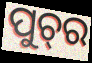
ପୁଚ୍‍ର